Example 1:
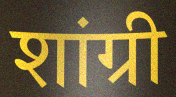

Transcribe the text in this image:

शांग्री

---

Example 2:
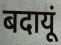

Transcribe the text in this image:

बदायूं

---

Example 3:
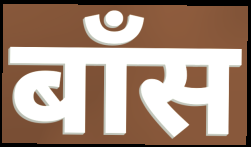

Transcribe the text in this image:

बाँस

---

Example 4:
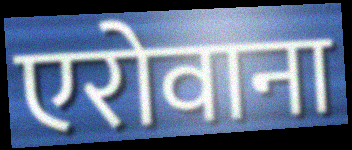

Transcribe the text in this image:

एरोवाना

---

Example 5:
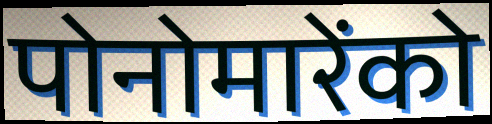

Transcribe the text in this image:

पोनोमारेंको